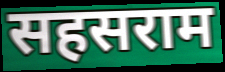
सहसराम